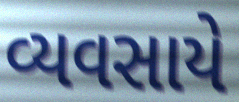
વ્યવસાયે